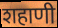
शहाणी